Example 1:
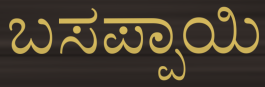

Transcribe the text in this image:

ಬಸಪ್ಪಾಯಿ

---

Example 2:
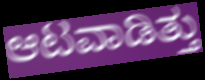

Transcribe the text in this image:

ಆಟವಾಡಿತ್ತು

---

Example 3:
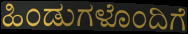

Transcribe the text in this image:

ಹಿಂಡುಗಳೊಂದಿಗೆ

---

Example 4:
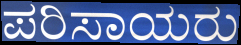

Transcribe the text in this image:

ಪರಿಸಾಯರು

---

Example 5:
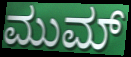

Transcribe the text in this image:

ಮುಮ್